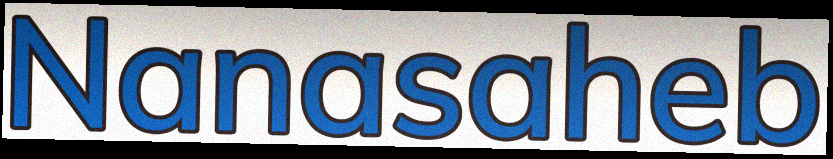
Nanasaheb